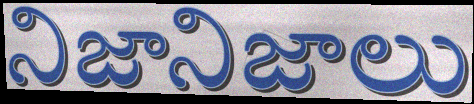
నిజానిజాలు